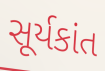
સૂર્યકાંત